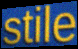
stile